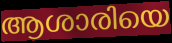
ആശാരിയെ